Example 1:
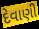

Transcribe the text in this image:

દેવાણી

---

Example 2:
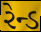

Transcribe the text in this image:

રેન્ડ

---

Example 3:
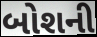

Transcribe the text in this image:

બોશની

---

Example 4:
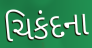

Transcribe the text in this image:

ચિકંદના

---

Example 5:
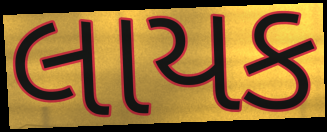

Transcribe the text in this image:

લાયક